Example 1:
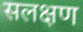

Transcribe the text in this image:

सलक्षण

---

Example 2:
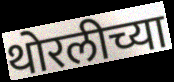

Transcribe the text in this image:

थोरलीच्या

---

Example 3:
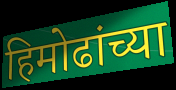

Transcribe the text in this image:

हिमोढांच्या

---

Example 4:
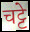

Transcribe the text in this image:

चट्टे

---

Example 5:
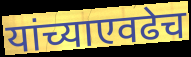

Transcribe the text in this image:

यांच्याएवढेच